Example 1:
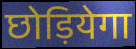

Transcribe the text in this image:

छोड़ियेगा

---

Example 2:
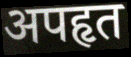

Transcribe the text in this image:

अपहृत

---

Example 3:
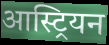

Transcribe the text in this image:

आस्ट्रियन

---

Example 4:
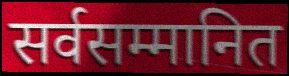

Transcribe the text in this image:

सर्वसम्मानित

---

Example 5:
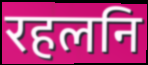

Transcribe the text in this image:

रहलनि